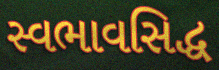
સ્વભાવસિદ્ધ